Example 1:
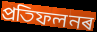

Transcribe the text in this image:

প্ৰতিফলনৰ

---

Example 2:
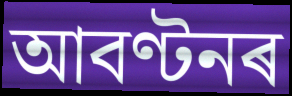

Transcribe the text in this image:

আবণ্টনৰ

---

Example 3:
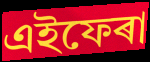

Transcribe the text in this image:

এইফেৰা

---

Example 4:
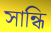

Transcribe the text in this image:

সান্ধি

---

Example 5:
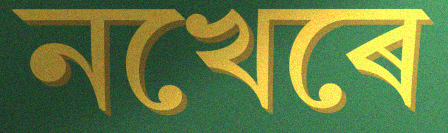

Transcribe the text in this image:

নখেৰে